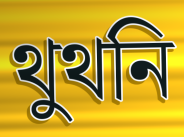
থুথনি